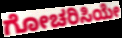
ಗೋಚರಿಸಿಯೇ